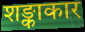
शङ्काकार